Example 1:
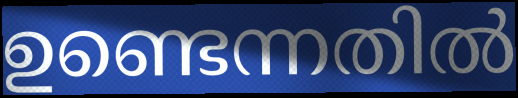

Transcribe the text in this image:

ഉണ്ടെന്നതിൽ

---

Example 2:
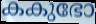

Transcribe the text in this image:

കകുഭോ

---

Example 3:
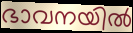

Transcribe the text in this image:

ഭാവനയിൽ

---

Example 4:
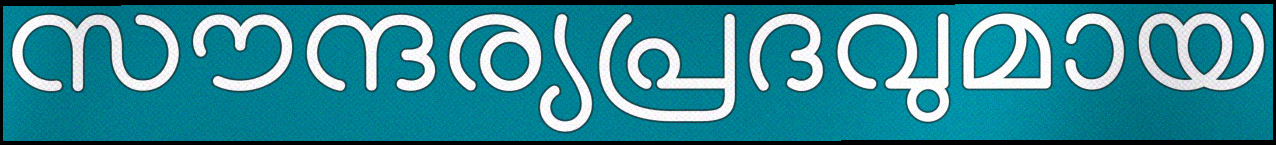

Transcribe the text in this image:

സൗന്ദര്യപ്രദവുമായ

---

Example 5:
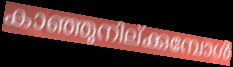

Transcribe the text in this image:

കാഞ്ഞുനില്ക്കുമ്പോൾ